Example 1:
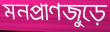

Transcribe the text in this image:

মনপ্রাণজুড়ে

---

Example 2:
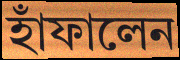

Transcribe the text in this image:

হাঁফালেন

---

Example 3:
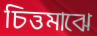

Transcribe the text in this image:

চিত্তমাঝে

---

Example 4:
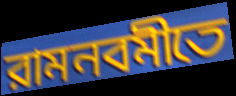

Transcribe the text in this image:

রামনবমীতে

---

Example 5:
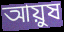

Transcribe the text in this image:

আয়ুষ